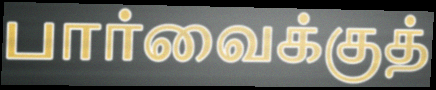
பார்வைக்குத்